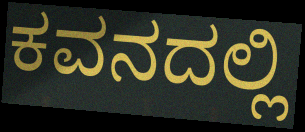
ಕವನದಲ್ಲಿ